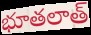
భూతలాత్